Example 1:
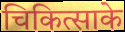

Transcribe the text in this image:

चिकित्साके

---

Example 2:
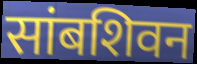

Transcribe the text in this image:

सांबशिवन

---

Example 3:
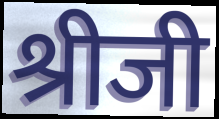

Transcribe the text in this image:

श्रीजी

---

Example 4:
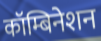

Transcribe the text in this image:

कॉम्बिनेशन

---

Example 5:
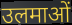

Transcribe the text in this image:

उलमाओं